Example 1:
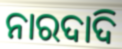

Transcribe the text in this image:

ନାରଦାଦି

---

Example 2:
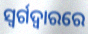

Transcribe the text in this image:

ସ୍ୱର୍ଗଦ୍ୱାରରେ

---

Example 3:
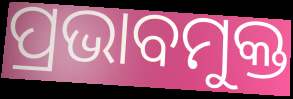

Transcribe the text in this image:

ପ୍ରଭାବମୁକ୍ତ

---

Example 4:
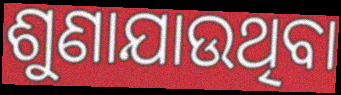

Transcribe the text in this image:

ଶୁଣାଯାଉଥିବା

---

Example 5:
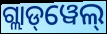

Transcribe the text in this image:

ଗ୍ଲାଡ୍‌ୱେଲ୍